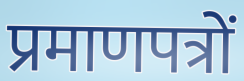
प्रमाणपत्रों